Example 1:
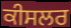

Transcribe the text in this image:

ਕੀਸਲਰ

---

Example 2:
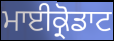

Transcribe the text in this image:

ਮਾਈਕ੍ਰੋਡਾਟ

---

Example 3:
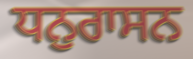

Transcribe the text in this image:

ਧਨੁਰਾਸਨ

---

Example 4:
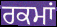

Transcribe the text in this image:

ਰਕਮਾਂ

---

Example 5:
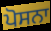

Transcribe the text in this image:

ਪੋਸਨਾ